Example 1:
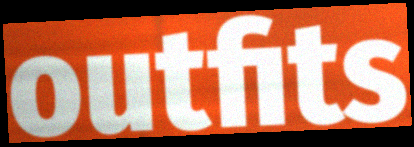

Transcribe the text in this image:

outfits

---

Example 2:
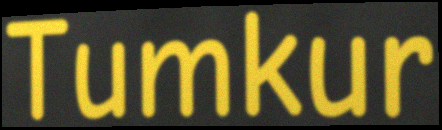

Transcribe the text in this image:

Tumkur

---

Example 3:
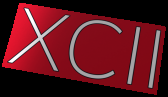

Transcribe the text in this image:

XCII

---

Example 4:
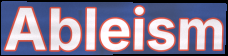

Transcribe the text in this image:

Ableism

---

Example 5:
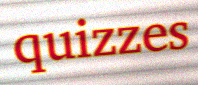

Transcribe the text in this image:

quizzes